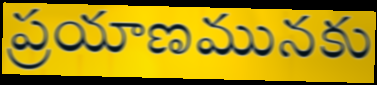
ప్రయాణమునకు